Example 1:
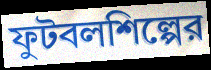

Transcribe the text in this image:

ফুটবলশিল্পের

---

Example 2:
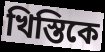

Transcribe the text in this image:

খিস্তিকে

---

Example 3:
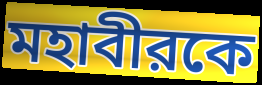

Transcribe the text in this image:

মহাবীরকে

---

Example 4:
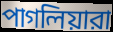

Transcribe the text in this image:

পাগলিয়ারা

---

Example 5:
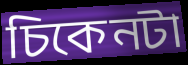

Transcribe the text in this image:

চিকেনটা